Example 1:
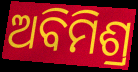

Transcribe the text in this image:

ଅବିମିଶ୍ର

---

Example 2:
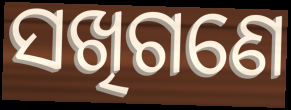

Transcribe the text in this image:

ସଖିଗଣେ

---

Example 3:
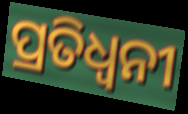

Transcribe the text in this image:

ପ୍ରତିଧ୍ଵନୀ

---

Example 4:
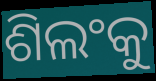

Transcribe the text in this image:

ଶିଲଂକୁ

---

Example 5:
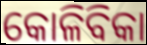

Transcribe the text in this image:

କୋଳିବିକା